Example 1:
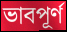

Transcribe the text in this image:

ভাবপূর্ণ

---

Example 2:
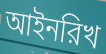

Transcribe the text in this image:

আইনরিখ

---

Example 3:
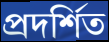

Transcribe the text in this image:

প্রদর্শিত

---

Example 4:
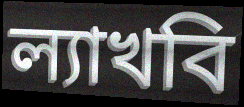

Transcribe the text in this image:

ল্যাখবি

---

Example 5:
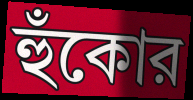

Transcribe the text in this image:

হুঁকোর